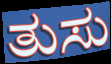
ತುಸು